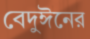
বেদুঈনের